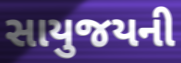
સાયુજયની